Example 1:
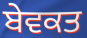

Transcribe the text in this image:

ਬੇਵਕਤ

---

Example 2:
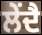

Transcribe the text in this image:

ਲੇਂਦੈ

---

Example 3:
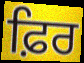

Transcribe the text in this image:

ਫ਼ਿਰ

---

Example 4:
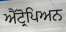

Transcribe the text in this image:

ਐਂਟ੍ਰੋਪਿਅਨ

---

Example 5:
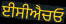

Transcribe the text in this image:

ਈਸੀਐਚਓ